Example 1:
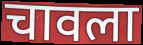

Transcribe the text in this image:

चावला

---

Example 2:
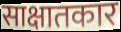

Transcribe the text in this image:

साक्षातकार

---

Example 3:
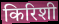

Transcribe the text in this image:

किरिशी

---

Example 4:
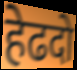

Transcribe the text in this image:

हेढदो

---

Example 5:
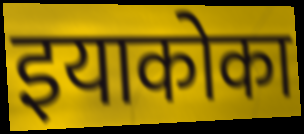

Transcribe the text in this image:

इयाकोका